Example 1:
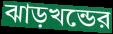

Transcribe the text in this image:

ঝাড়খন্ডের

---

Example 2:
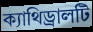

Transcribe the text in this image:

ক্যাথিড্রালটি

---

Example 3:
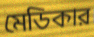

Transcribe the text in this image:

মেডিকার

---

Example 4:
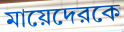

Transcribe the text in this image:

মায়েদেরকে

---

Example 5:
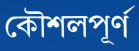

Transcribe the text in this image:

কৌশলপূর্ণ